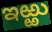
ఇఱ్ఱు